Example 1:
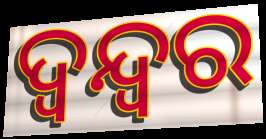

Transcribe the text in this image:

ଦ୍ଵନ୍ଦ୍ୱର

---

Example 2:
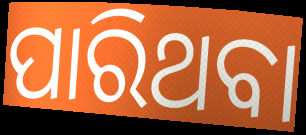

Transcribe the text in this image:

ପାରିଥବା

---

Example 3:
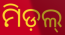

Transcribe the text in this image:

ମିଡ଼ଲ୍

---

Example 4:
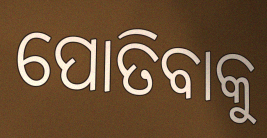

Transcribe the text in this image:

ପୋତିବାକୁ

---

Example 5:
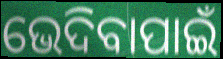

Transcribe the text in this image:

ଭେଦିବାପାଇଁ